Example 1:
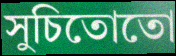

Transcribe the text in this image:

সুচিতোতো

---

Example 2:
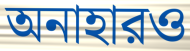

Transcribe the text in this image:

অনাহারও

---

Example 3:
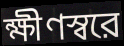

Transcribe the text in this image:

ক্ষীণস্বরে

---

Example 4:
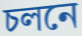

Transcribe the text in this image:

চলনে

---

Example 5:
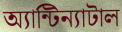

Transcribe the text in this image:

অ্যান্টিন্যাটাল